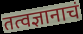
तत्वज्ञानाचं